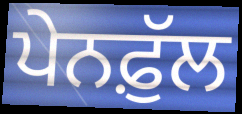
ਪੇਨਫ਼ੁੱਲ